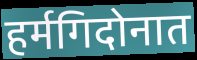
हर्मगिदोनात